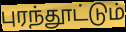
புரந்தூட்டும்